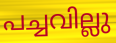
പച്ചവില്ലു